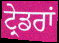
ਟ੍ਰੇਡਰਾਂ